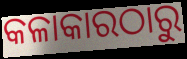
କଳାକାରଠାରୁ